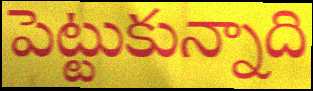
పెట్టుకున్నాది